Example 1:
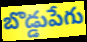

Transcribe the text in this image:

బొడ్డుపేగు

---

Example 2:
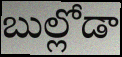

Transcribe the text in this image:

బుల్లోడా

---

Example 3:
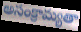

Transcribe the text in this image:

అసంక్రామ్యతా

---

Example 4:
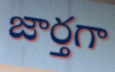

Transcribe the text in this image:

జార్తగా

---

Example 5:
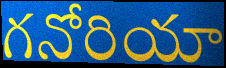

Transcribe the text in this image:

గనోరియా